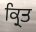
ਕ੍ਰਿਤ